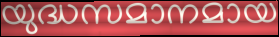
യുദ്ധസമാനമായ